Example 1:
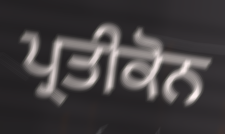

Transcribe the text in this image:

ਪ੍ਰਤੀਕੋਨ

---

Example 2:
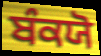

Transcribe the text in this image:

ਬੰਕਯੋ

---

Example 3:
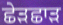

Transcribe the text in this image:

ਛੇੜਛਾੜ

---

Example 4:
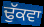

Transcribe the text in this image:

ਢੁੱਕਵਾ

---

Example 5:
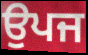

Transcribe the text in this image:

ਉਪਜ